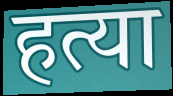
हत्या